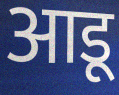
आडू